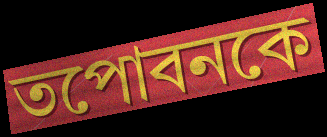
তপোবনকে